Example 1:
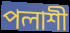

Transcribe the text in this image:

পলাশী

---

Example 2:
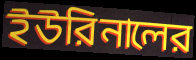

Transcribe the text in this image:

ইউরিনালের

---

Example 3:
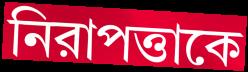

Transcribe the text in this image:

নিরাপত্তাকে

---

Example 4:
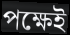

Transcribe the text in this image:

পক্ষেই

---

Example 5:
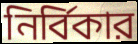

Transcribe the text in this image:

নির্বিকার